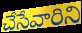
చేసేవారిని